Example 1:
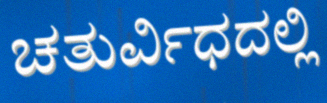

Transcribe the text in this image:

ಚತುರ್ವಿಧದಲ್ಲಿ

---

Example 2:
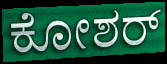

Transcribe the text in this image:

ಕೋಶರ್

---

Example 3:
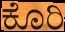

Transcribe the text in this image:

ಕೊರಿ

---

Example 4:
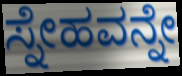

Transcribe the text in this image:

ಸ್ನೇಹವನ್ನೇ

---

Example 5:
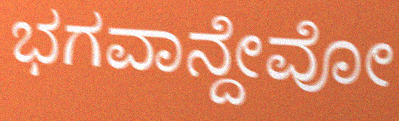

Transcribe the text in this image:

ಭಗವಾನ್ದೇವೋ